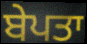
ਬੇਪਤਾ